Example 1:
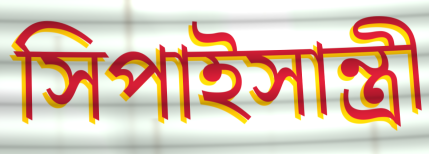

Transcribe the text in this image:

সিপাইসান্ত্রী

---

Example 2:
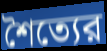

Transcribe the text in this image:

শৈত্যের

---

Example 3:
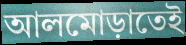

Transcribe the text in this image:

আলমোড়াতেই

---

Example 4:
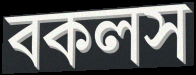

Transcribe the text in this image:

বকলস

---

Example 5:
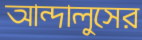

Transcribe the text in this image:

আন্দালুসের